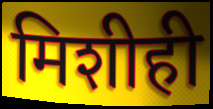
मिशीही